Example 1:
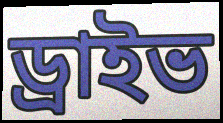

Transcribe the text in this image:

ড্রাইভ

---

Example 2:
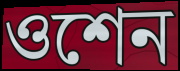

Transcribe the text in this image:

ওশেন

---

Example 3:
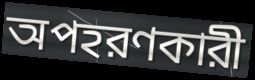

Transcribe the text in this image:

অপহরণকারী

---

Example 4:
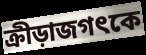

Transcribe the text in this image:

ক্রীড়াজগৎকে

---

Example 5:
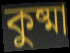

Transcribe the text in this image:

কুষ্মা